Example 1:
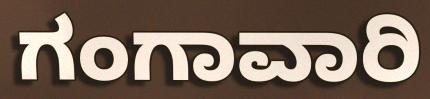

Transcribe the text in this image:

ಗಂಗಾವಾರಿ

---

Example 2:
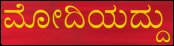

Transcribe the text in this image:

ಮೋದಿಯದ್ದು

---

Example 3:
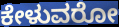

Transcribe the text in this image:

ಕೇಳುವರೋ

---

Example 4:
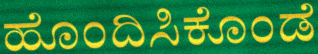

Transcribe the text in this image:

ಹೊಂದಿಸಿಕೊಂಡೆ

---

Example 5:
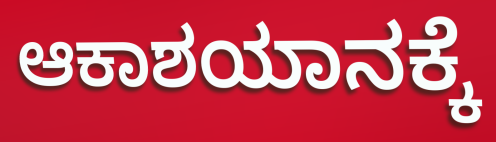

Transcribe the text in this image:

ಆಕಾಶಯಾನಕ್ಕೆ